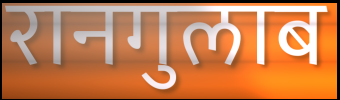
रानगुलाब